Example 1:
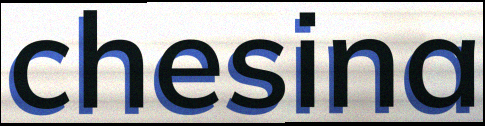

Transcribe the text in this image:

chesina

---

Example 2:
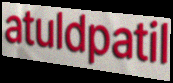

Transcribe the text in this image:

atuldpatil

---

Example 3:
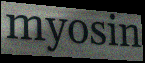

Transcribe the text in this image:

myosin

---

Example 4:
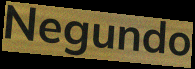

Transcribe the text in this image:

Negundo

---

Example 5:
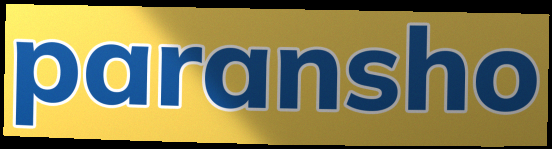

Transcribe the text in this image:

paransho